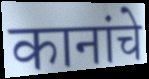
कानांचे